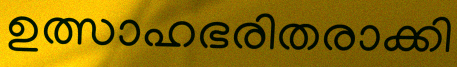
ഉത്സാഹഭരിതരാക്കി